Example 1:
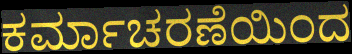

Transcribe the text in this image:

ಕರ್ಮಾಚರಣೆಯಿಂದ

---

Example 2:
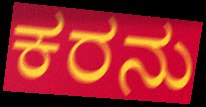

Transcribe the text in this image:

ಕರನು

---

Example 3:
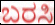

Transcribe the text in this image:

ಬರಸಿ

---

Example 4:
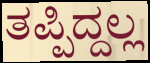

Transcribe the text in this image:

ತಪ್ಪಿದ್ದಲ್ಲ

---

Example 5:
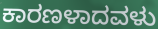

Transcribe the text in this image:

ಕಾರಣಳಾದವಳು